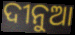
ଦୀନୁଆ